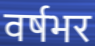
वर्षभर